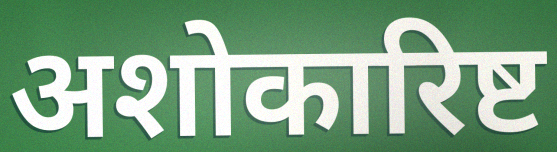
अशोकारिष्ट